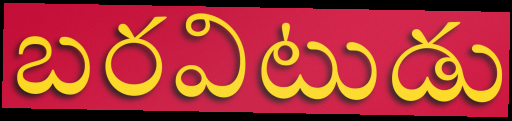
బరవిటుడు